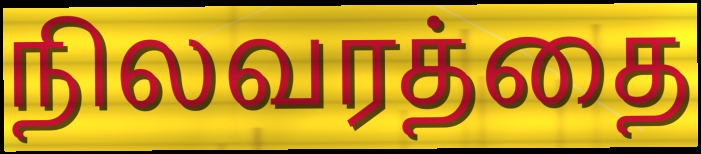
நிலவரத்தை